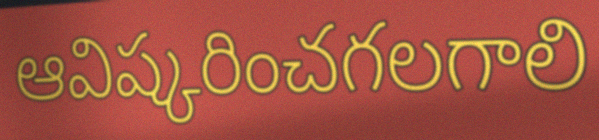
ఆవిష్కరించగలగాలి